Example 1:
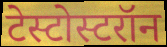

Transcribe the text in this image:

टेस्टोस्टरॉन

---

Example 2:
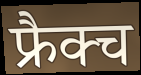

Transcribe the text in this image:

फ्रैक्च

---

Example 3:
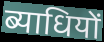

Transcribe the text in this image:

ब्याधियों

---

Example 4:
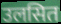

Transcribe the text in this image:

उलसित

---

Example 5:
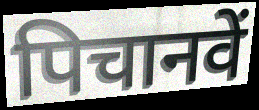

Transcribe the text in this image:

पिचानवें